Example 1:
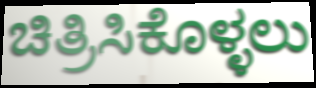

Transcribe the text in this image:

ಚಿತ್ರಿಸಿಕೊಳ್ಳಲು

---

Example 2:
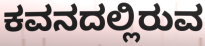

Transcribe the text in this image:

ಕವನದಲ್ಲಿರುವ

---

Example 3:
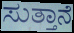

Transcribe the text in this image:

ಸುತ್ತಾನೆ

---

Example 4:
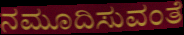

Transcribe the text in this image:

ನಮೂದಿಸುವಂತೆ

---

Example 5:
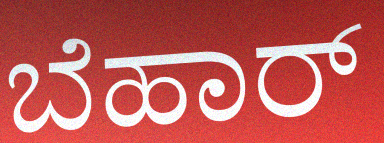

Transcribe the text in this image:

ಬೆಹಾರ್